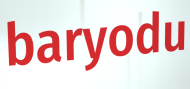
baryodu